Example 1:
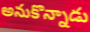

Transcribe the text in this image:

అనుకొన్నాడు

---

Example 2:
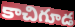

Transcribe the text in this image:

కాచిగూడ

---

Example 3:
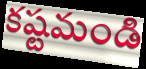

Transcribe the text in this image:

కష్టమండి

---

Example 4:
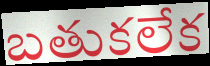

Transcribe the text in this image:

బతుకలేక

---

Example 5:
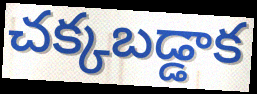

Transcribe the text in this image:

చక్కబడ్డాక